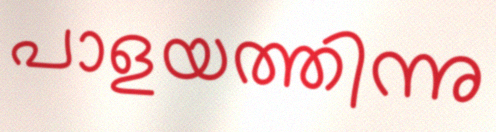
പാളയത്തിന്നു